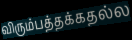
விரும்பத்தக்கதல்ல